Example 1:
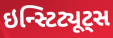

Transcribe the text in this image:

ઇન્સ્ટિટ્યૂટ્સ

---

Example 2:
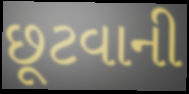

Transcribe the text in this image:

છૂટવાની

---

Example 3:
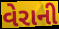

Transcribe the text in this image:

વેરાની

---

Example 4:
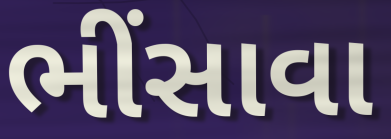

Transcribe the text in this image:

ભીંસાવા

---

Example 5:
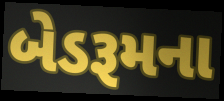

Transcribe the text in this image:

બેડરૂમના